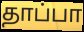
தாப்பா